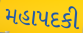
મહાપદકી